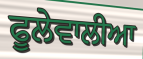
ਫੂਲੇਵਾਲੀਆ